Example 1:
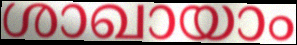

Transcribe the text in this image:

ശാഖായാം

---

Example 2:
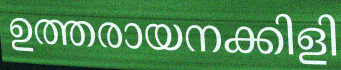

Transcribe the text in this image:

ഉത്തരായനക്കിളി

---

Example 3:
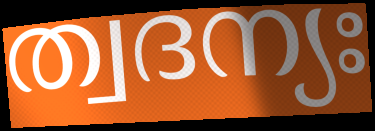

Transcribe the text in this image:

ത്വദന്യഃ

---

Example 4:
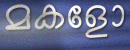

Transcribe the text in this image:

മകളോ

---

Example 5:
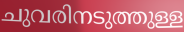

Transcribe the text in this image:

ചുവരിനടുത്തുള്ള